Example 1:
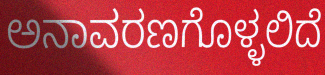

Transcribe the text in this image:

ಅನಾವರಣಗೊಳ್ಳಲಿದೆ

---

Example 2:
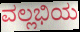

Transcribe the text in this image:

ವಲ್ಲಭಿಯ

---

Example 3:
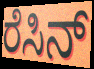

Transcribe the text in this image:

ರೆಸಿನ್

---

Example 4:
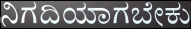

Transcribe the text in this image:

ನಿಗದಿಯಾಗಬೇಕು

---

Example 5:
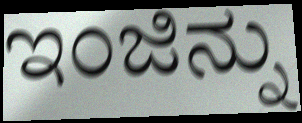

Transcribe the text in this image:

ಇಂಜಿನ್ನು